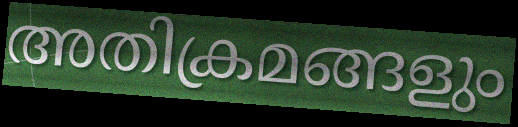
അതിക്രമങ്ങളും